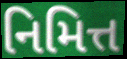
નિમિત્ત